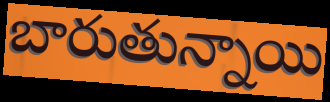
బారుతున్నాయి